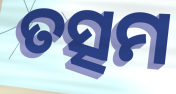
ତତ୍ସମ